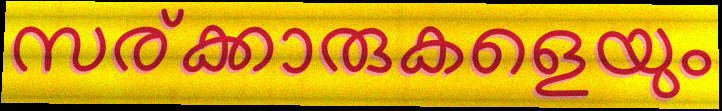
സര്ക്കാരുകളെയും